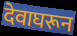
देवाघरून